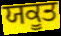
ਯਕੂਤ